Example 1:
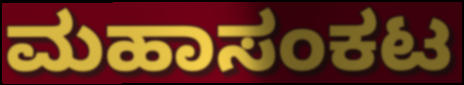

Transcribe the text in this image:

ಮಹಾಸಂಕಟ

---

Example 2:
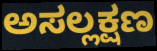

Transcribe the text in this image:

ಅಸಲ್ಲಕ್ಷಣ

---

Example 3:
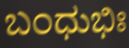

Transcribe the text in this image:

ಬಂಧುಭಿಃ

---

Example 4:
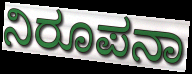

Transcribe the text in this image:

ನಿರೂಪನಾ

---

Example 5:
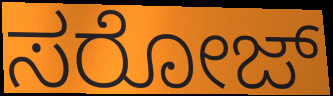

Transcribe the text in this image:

ಸರೋಜ್